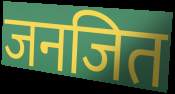
जनजित